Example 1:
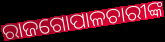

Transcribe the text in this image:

ରାଜଗୋପାଳଚାରୀଙ୍କ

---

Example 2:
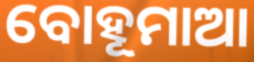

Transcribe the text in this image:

ବୋହୂମାଆ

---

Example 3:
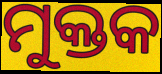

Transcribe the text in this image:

ମୁକ୍ତକ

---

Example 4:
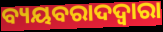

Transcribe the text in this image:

ବ୍ୟୟବରାଦଦ୍ଵାରା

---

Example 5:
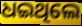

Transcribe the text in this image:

ଧଇଥିଲେ